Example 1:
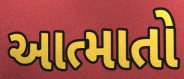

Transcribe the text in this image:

આત્માતો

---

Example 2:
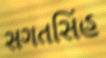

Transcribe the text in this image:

સગતસિંહ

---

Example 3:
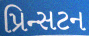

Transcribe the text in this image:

પ્રિન્સટન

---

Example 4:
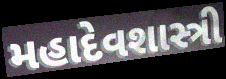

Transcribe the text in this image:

મહાદેવશાસ્ત્રી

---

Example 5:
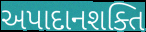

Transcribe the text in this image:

અપાદાનશક્તિ